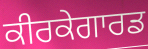
ਕੀਰਕੇਗਾਰਡ